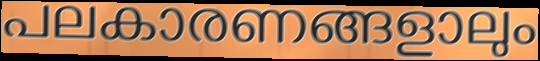
പലകാരണങ്ങളാലും